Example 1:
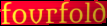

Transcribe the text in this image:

fourfold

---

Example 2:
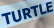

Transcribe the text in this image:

TURTLE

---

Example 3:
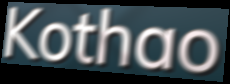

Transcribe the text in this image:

Kothao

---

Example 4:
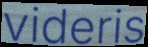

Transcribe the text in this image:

videris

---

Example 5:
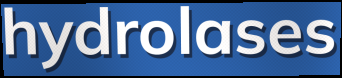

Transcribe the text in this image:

hydrolases